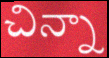
చిన్నా